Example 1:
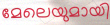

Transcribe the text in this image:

മേലെയുമായി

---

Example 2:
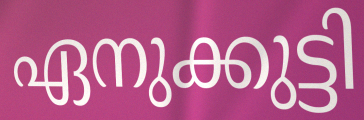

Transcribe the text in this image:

ഏനുക്കുട്ടി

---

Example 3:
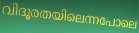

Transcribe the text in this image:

വിദൂരതയിലെന്നപോലെ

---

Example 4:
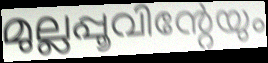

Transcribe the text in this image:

മുല്ലപ്പൂവിന്റേയും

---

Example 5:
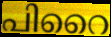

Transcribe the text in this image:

പിറൈ